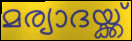
മര്യാദയ്ക്ക്